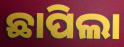
ଛାପିଲା